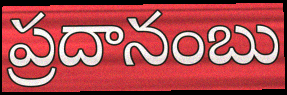
ప్రదానంబు